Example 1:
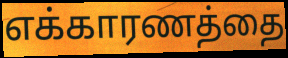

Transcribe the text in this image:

எக்காரணத்தை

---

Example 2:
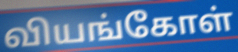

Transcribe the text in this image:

வியங்கோள்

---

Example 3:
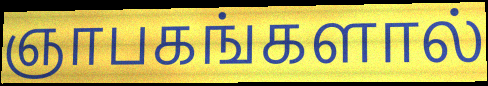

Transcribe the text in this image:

ஞாபகங்களால்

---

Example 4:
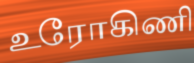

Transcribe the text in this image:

உரோகிணி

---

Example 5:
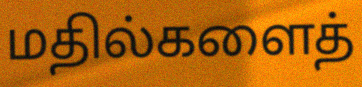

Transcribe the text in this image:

மதில்களைத்